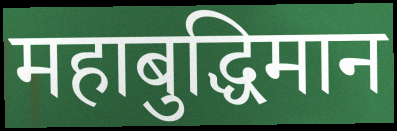
महाबुद्धिमान